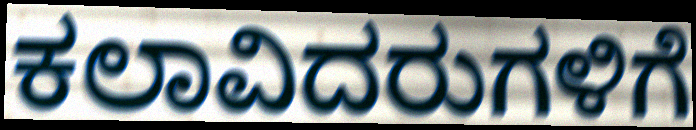
ಕಲಾವಿದರುಗಳಿಗೆ